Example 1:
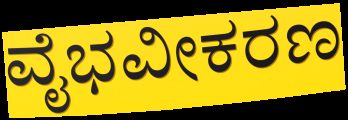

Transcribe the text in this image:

ವೈಭವೀಕರಣ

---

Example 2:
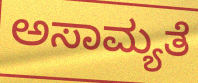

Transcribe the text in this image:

ಅಸಾಮ್ಯತೆ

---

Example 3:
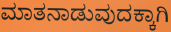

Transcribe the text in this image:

ಮಾತನಾಡುವುದಕ್ಕಾಗಿ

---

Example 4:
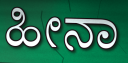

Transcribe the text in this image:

ಹೀನಾ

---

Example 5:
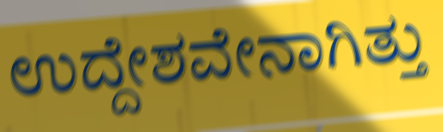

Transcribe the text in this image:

ಉದ್ದೇಶವೇನಾಗಿತ್ತು